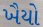
ખૈયો